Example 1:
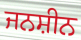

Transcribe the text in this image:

ਜਨਸ਼ੀਨ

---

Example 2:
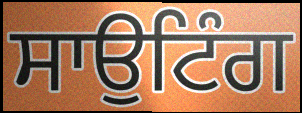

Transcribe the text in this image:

ਸਾਉਟਿੰਗ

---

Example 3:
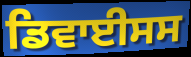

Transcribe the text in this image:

ਡਿਵਾਈਸਸ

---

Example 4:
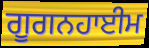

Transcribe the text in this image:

ਗੂਗਨਹਾਈਮ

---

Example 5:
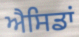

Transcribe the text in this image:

ਐਸਿਡਾਂ